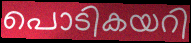
പൊടികയറി